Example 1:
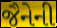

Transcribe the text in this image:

જૈનેની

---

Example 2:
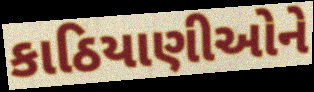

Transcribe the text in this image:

કાઠિયાણીઓને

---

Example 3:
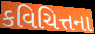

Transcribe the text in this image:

કવિચિત્તના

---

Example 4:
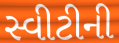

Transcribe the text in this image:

સ્વીટીની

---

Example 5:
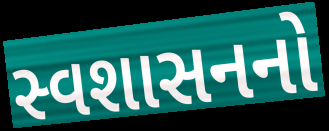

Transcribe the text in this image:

સ્વશાસનનો